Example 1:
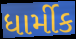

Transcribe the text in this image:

ધાર્મીક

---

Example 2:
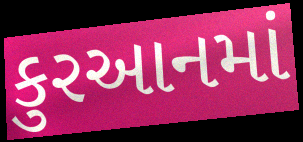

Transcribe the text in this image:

કુરઆનમાં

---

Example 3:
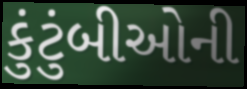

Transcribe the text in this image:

કુંટુંબીઓની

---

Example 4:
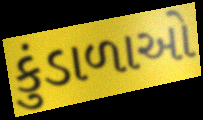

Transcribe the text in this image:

કુંડાળાઓ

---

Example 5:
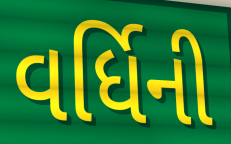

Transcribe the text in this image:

વર્ધિની